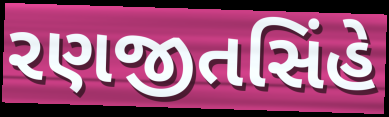
રણજીતસિંહે